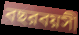
বছরবয়সী